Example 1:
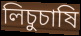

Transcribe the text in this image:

লিচুচাষি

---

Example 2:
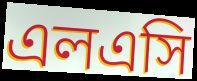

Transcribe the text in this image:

এলএসি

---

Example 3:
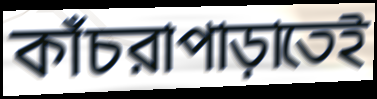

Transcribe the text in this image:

কাঁচরাপাড়াতেই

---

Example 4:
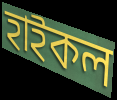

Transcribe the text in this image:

হাইকল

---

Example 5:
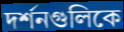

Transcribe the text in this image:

দর্শনগুলিকে